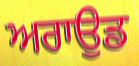
ਅਰਾਉਡ